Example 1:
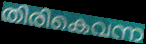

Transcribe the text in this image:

തിരികെവന്ന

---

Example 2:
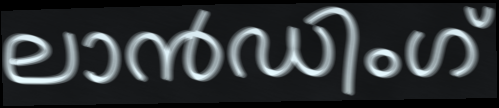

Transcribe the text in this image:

ലാൻഡിംഗ്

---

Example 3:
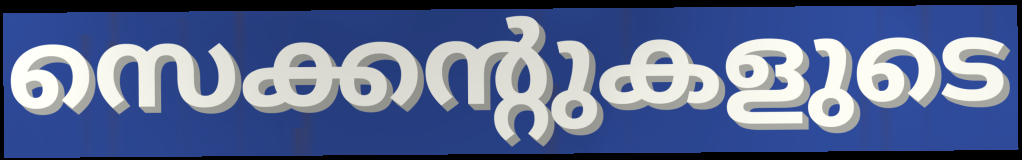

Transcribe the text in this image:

സെക്കന്റുകളുടെ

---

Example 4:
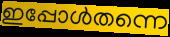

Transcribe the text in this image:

ഇപ്പോൾതന്നെ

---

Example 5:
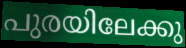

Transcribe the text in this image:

പുരയിലേക്കു